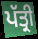
ਪੱਤ੍ਰੀ